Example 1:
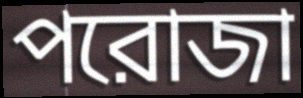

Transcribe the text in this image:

পরোজা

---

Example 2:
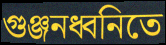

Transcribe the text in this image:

গুঞ্জনধ্বনিতে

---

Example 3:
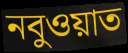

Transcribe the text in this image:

নবুওয়াত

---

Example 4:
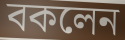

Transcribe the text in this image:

বকলেন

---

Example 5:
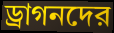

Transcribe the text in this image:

ড্রাগনদের